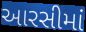
આરસીમાં